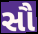
સૌ